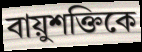
বায়ুশক্তিকে